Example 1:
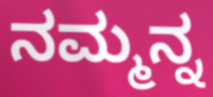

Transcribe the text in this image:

ನಮ್ಮನ್ನ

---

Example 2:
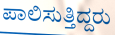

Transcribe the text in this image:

ಪಾಲಿಸುತ್ತಿದ್ದರು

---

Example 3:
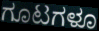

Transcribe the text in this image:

ಗೂಟಗಳೂ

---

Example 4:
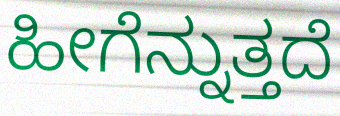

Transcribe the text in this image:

ಹೀಗೆನ್ನುತ್ತದೆ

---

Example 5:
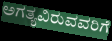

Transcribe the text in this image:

ಅಗತ್ಯವಿರುವವರಿಗೆ